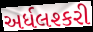
અર્ધલશ્કરી